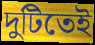
দুটিতেই